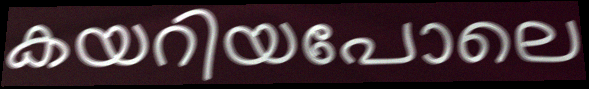
കയറിയപോലെ